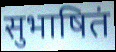
सुभाषितं